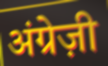
अंग्रेज़ी